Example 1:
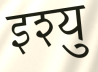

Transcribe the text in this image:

इश्यु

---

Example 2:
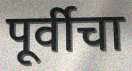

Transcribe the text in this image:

पूर्वीचा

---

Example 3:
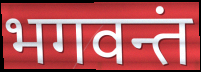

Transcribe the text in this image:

भगवन्तं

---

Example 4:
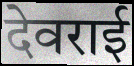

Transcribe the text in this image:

देवराई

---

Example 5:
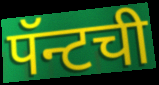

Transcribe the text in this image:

पॅन्टची